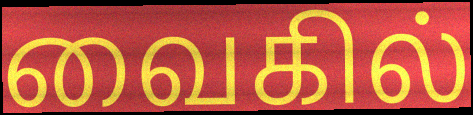
வைகில்